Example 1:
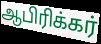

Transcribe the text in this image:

ஆபிரிக்கர்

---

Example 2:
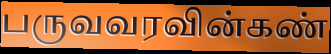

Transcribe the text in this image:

பருவவரவின்கண்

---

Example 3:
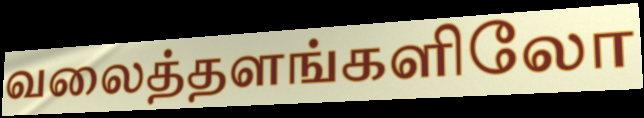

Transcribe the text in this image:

வலைத்தளங்களிலோ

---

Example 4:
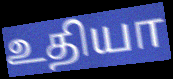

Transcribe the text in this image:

உதியா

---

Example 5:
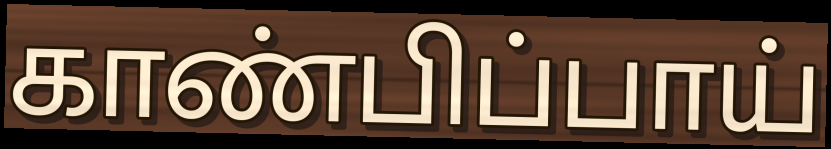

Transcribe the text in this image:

காண்பிப்பாய்